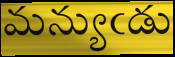
మన్యుఁడు